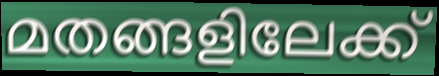
മതങ്ങളിലേക്ക്